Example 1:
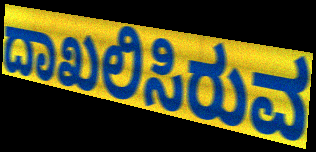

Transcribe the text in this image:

ದಾಖಲಿಸಿರುವ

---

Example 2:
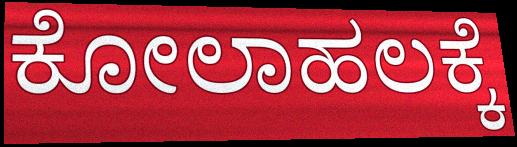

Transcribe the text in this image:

ಕೋಲಾಹಲಕ್ಕೆ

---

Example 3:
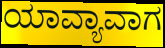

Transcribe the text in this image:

ಯಾವ್ಯಾವಾಗ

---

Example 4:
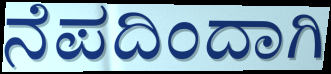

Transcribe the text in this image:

ನೆಪದಿಂದಾಗಿ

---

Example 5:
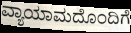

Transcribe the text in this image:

ವ್ಯಾಯಾಮದೊಂದಿಗೆ